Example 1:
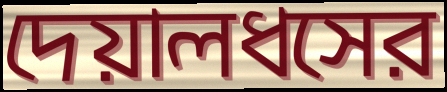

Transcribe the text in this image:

দেয়ালধসের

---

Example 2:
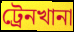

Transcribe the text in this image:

ট্রেনখানা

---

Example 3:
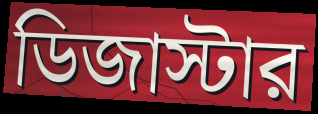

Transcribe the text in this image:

ডিজাস্টার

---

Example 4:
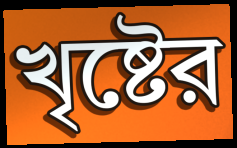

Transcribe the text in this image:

খৃষ্টের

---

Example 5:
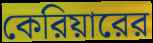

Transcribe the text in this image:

কেরিয়ারের